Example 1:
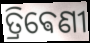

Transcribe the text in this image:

ତ୍ରିଵେଣୀ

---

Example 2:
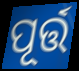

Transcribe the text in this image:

ପୂର୍ତ୍ତ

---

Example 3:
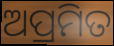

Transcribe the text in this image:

ଅପ୍ରମିତ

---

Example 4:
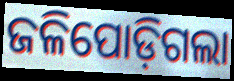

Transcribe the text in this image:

ଜଳିପୋଡ଼ିଗଲା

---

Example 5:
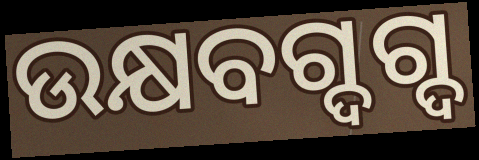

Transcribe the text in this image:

ଉକ୍ଷବଗ୍ଦଗ୍ଦ